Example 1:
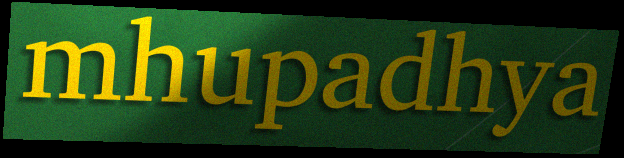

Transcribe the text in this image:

mhupadhya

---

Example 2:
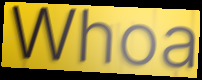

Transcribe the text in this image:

Whoa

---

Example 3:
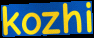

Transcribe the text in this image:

kozhi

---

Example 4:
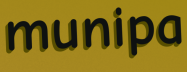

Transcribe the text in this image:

munipa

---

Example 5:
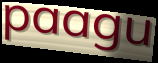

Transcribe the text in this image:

paagu